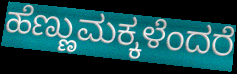
ಹೆಣ್ಣುಮಕ್ಕಳೆಂದರೆ